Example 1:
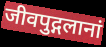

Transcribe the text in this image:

जीवपुद्गलानां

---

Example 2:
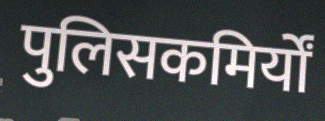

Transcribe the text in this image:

पुलिसकमिर्यों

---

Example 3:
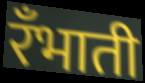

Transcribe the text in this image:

रँभाती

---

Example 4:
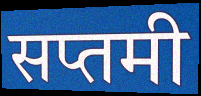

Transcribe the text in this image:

सप्तमी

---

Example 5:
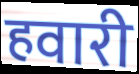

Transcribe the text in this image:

हवारी